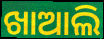
ଖାଆଲି